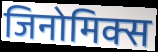
जिनोमिक्स